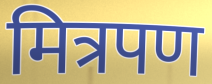
मित्रपण